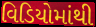
વિડિયોમાંથી